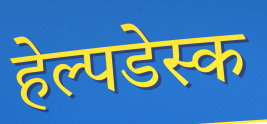
हेल्पडेस्क